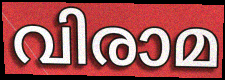
വിരാമ